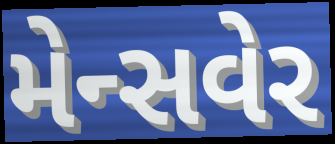
મેન્સવેર